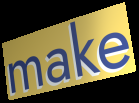
make